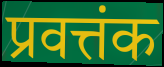
प्रवत्तंक